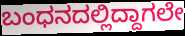
ಬಂಧನದಲ್ಲಿದ್ದಾಗಲೇ